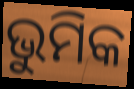
ଭୁମିକ